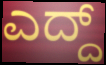
ಎದ್ದ್